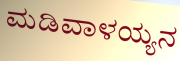
ಮಡಿವಾಳಯ್ಯನ